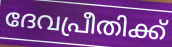
ദേവപ്രീതിക്ക്